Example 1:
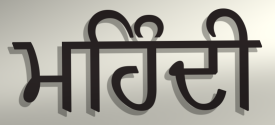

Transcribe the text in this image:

ਮਹਿੰਦੀ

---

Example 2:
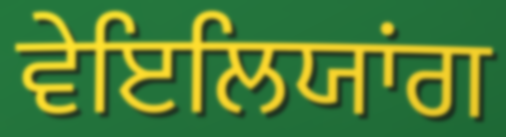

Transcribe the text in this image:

ਵੇਇਲਿਯਾਂਗ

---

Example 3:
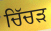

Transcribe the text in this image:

ਚਿੱਚੜ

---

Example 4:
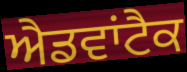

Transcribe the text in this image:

ਐਡਵਾਂਟੈਕ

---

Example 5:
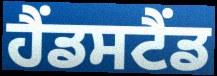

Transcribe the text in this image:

ਹੈਂਡਸਟੈਂਡ